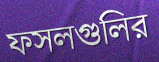
ফসলগুলির